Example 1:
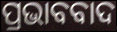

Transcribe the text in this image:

ପ୍ରଭାବବାଦ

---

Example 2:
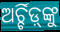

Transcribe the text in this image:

ଅର୍ଚ୍ଚିଡ଼୍‌ଙ୍କୁ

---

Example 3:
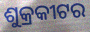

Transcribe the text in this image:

ଶୁକ୍ରକୀଟର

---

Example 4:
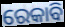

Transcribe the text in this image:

ରେକାବି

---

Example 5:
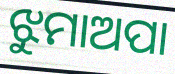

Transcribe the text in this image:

ଝୁମାଅପା